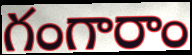
గంగారాం